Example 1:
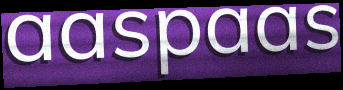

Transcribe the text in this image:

aaspaas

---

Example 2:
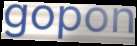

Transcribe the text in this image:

gopon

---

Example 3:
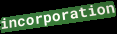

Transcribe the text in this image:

incorporation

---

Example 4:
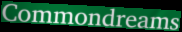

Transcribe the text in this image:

Commondreams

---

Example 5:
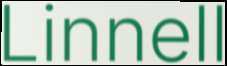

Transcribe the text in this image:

Linnell